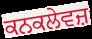
ਕਨਕਲੇਵਜ਼